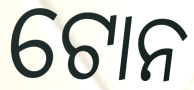
ଟୋନ